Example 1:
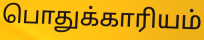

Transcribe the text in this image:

பொதுக்காரியம்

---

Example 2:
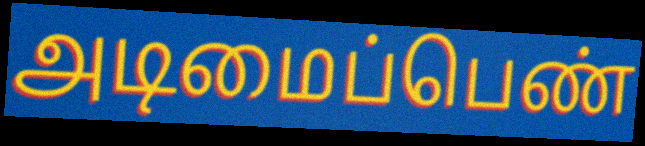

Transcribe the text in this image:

அடிமைப்பெண்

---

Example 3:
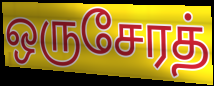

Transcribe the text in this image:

ஒருசேரத்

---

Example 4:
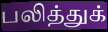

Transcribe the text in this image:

பலித்துக்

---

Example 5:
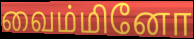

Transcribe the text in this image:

வைம்மினோ